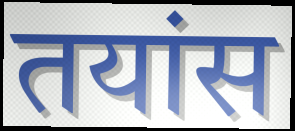
तयांस